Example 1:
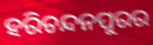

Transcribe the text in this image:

ହରିଚନ୍ଦନପୁରର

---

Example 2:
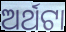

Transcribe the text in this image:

ଅର୍ଥଟା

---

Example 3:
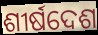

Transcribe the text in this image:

ଶୀର୍ଷଦେଶ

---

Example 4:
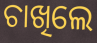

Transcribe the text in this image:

ଚାଖିଲେ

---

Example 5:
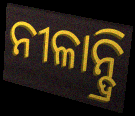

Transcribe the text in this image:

ନୀଳାନ୍ଦ୍ରି